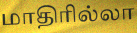
மாதிரில்லா